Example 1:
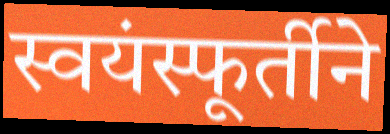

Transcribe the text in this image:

स्वयंस्फूर्तीने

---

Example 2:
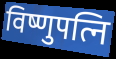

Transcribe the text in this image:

विष्णुपत्नि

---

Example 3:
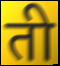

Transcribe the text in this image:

ती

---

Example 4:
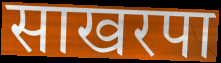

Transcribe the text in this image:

साखरपा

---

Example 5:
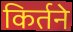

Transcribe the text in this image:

किर्तने